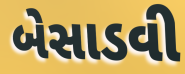
બેસાડવી